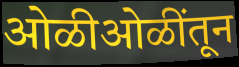
ओळीओळींतून